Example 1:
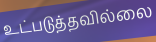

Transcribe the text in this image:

உட்படுத்தவில்லை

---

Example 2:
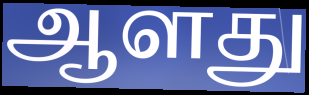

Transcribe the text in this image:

ஆளது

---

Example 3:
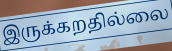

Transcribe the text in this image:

இருக்கறதில்லை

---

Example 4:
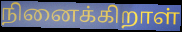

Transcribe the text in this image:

நினைக்கிறாள்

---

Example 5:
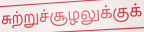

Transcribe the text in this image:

சுற்றுச்சூழலுக்குக்